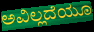
ಅವಿಲ್ಲದೆಯೂ